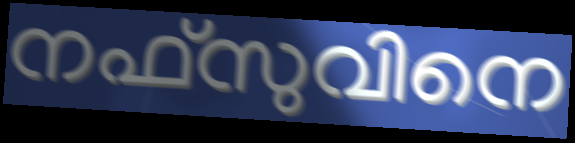
നഫ്സുവിനെ